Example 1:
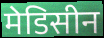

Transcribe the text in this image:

मेडिसीन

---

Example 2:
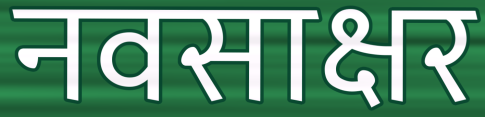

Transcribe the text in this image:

नवसाक्षर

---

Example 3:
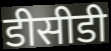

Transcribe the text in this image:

डीसीडी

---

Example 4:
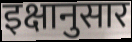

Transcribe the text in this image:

इक्षानुसार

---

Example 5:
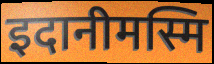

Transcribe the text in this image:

इदानीमस्मि